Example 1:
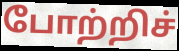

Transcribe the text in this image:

போற்றிச்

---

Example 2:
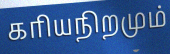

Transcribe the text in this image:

கரியநிறமும்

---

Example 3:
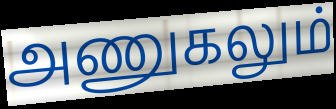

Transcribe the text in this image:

அணுகலும்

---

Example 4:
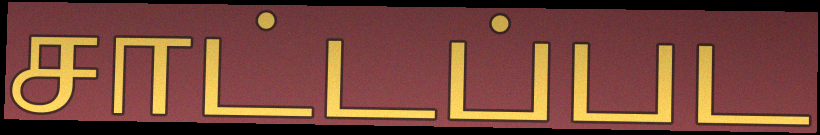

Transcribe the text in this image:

சாட்டப்பட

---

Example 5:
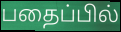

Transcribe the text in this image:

பதைப்பில்